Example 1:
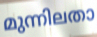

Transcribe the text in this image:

മുന്നിലതാ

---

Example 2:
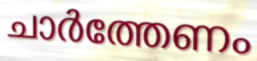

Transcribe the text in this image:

ചാർത്തേണം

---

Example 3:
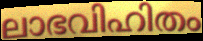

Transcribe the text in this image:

ലാഭവിഹിതം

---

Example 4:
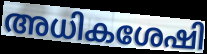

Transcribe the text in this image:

അധികശേഷി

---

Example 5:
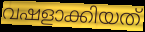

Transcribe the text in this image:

വഷളാക്കിയത്